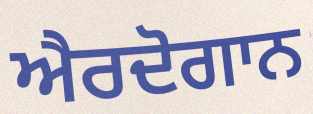
ਐਰਦੋਗਾਨ